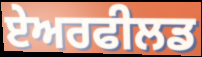
ਏਅਰਫੀਲਡ